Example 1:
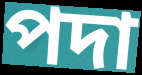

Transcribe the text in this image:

পদা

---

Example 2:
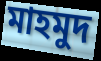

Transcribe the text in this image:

মাহমুদ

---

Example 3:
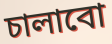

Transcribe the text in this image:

চালাবো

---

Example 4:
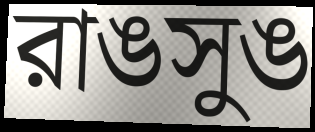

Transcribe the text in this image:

রাঙসুঙ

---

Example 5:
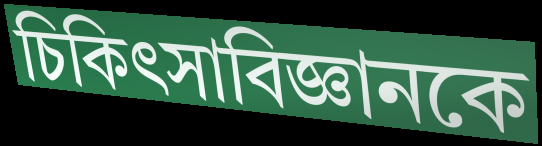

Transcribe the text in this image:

চিকিৎসাবিজ্ঞানকে